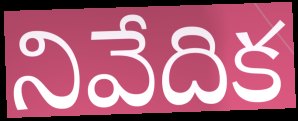
నివేదిక